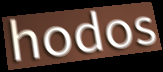
hodos